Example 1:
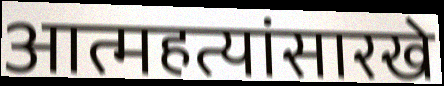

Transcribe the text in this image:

आत्महत्यांसारखे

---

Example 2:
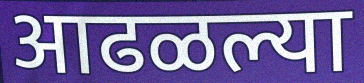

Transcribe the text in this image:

आढळल्या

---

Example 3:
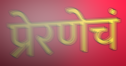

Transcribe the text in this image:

प्रेरणेचं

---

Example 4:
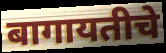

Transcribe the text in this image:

बागायतीचे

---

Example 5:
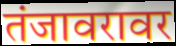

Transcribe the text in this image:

तंजावरावर